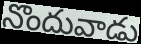
నొందువాడు